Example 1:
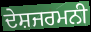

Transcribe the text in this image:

ਦੇਸ਼ਜਰਮਨੀ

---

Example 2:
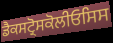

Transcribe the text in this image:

ਡੈਕਸਟ੍ਰੋਸਕੋਲੀਓਸਿਸ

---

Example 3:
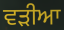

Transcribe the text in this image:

ਵੜੀਆ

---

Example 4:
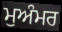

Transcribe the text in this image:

ਮੁਅੰਮਰ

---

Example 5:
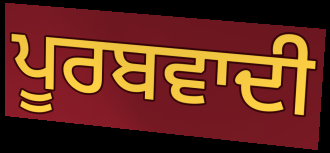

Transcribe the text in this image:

ਪੂਰਬਵਾਦੀ